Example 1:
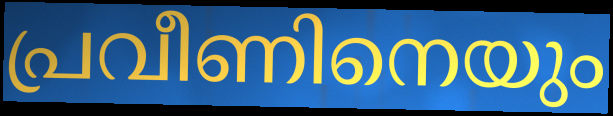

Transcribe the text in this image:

പ്രവീണിനെയും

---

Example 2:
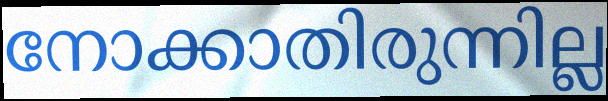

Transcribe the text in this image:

നോക്കാതിരുന്നില്ല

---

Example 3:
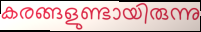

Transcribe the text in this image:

കരങ്ങളുണ്ടായിരുന്നു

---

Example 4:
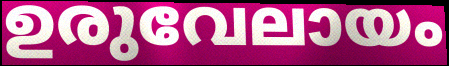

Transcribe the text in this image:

ഉരുവേലായം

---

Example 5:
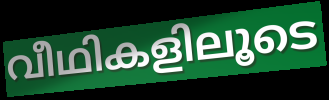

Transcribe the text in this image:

വീഥികളിലൂടെ